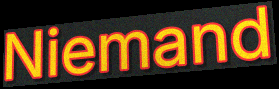
Niemand